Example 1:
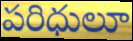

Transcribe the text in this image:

పరిధులూ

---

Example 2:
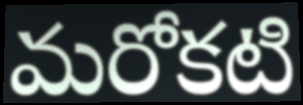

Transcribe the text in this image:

మరోకటి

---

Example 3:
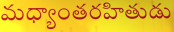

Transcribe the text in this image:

మధ్యాంతరహితుడు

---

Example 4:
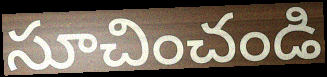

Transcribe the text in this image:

సూచించండి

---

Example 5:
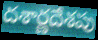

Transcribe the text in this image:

దశార్ణదేశపు